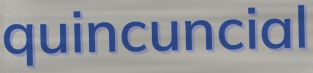
quincuncial